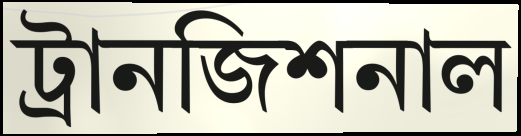
ট্রানজিশনাল